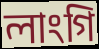
লাংগি